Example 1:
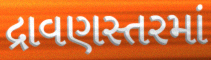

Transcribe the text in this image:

દ્રાવણસ્તરમાં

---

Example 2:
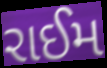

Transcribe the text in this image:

રાઈમ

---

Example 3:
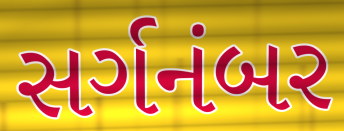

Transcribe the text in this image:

સર્ગનંબર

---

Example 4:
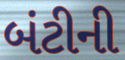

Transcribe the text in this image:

બંટીની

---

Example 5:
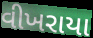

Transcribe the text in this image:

વીખરાયા